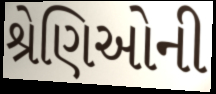
શ્રેણિઓની